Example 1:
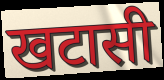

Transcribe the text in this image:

खटासी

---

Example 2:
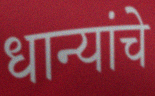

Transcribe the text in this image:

धान्यांचे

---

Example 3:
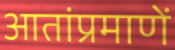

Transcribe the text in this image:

आतांप्रमाणें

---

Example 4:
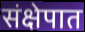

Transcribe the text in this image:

संक्षेपात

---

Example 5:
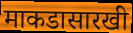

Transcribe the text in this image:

माकडासारखी